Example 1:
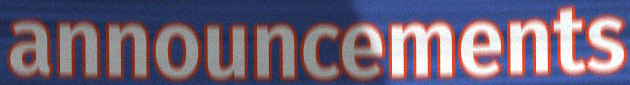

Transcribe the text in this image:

announcements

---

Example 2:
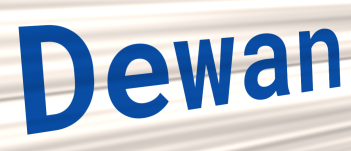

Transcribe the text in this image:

Dewan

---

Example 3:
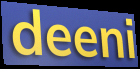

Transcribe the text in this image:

deeni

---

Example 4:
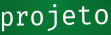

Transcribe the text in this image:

projeto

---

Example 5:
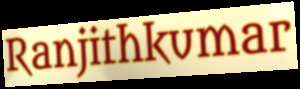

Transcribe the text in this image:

Ranjithkumar